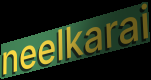
neelkarai